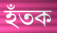
হঁতক